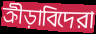
ক্রীড়াবিদেরা